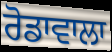
ਰੋਡਾਵਾਲਾ